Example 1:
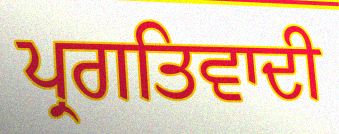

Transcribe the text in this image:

ਪ੍ਰਗਤਿਵਾਦੀ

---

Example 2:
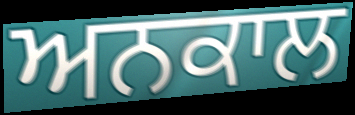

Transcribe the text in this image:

ਅਨਕਾਲ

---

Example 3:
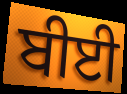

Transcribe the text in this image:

ਬੀਈ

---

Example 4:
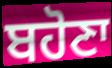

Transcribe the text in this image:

ਬਹੋਣਾ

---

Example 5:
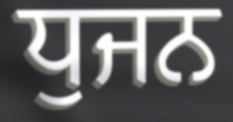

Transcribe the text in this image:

ਧੁਜਨ